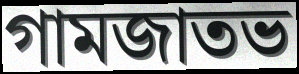
গামজাতভ